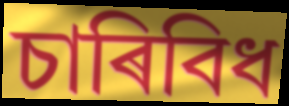
চাৰিবিধ